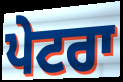
ਪੇਟਰਾ